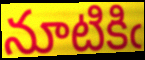
నూటికిఁ